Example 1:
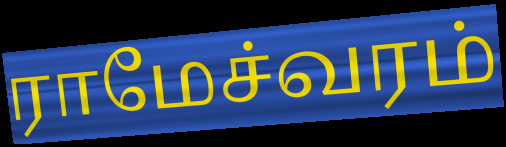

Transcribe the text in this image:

ராமேச்வரம்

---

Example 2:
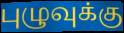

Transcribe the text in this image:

புழுவுக்கு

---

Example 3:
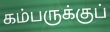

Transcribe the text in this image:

கம்பருக்குப்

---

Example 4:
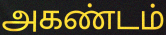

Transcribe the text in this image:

அகண்டம்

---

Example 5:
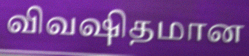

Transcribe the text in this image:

விவஷிதமான